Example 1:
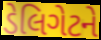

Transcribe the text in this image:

ડેલિગેટને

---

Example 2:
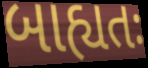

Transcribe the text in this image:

બાહ્યતઃ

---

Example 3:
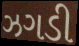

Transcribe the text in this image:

ઝગડી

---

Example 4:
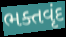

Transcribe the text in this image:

ભક્તવૃંદ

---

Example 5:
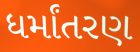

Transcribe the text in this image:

ધર્માંતરણ